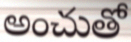
అంచుతో